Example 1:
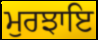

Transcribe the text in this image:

ਮੁਰਝਾਇ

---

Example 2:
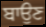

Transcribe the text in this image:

ਬਾਉਣ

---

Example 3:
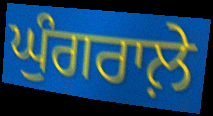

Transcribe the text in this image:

ਘੁੰਗਰਾਲ਼ੇ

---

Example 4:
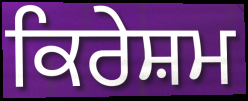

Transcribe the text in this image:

ਕਿਰੇਸ਼ਮ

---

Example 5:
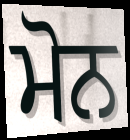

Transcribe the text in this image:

ਮੋਨ